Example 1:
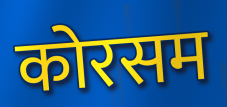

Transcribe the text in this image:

कोरसम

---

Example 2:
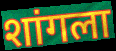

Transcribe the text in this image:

शांगला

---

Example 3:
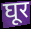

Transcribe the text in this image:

घूर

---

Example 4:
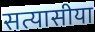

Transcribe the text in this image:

सत्यासीया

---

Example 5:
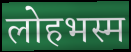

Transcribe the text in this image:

लोहभस्म